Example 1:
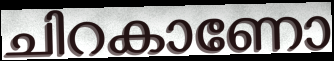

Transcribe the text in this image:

ചിറകാണോ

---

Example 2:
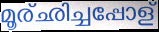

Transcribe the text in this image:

മൂര്ഛിച്ചപ്പോള്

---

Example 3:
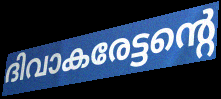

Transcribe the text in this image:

ദിവാകരേട്ടന്റെ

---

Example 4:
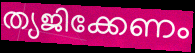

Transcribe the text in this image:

ത്യജിക്കേണം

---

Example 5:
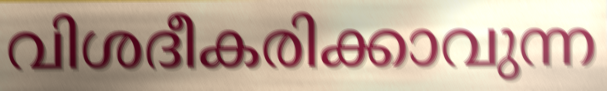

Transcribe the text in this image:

വിശദീകരിക്കാവുന്ന